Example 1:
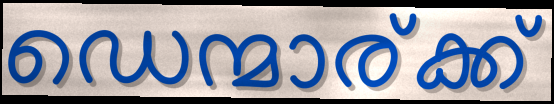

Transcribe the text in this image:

ഡെന്മാര്ക്ക്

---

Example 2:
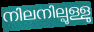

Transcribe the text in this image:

നിലനില്പുള്ളു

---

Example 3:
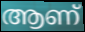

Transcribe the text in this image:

ആണ്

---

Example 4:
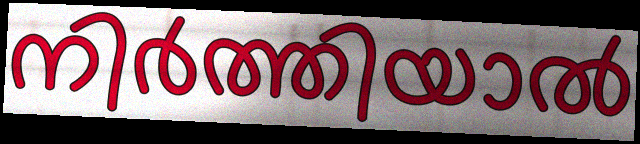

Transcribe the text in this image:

നിർത്തിയാൽ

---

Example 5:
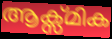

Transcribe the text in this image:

ആക്സ്മിക